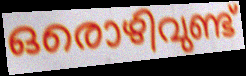
ഒരൊഴിവുണ്ട്